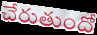
చేరుతుందో